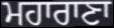
ਮਹਾਰਾਣਾ